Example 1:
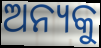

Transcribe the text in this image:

ଅନ୍ୟକୁ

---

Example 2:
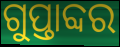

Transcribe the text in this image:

ଗୁପ୍ତାବ୍ଦର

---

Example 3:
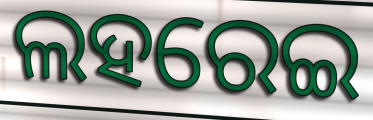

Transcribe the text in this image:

ଲହରେଇ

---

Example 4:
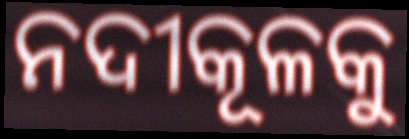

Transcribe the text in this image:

ନଦୀକୂଳକୁ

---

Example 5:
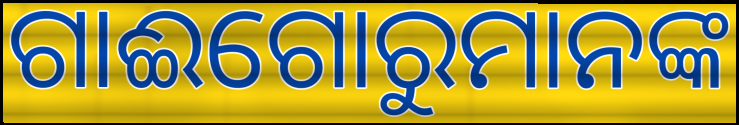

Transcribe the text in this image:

ଗାଈଗୋରୁମାନଙ୍କ